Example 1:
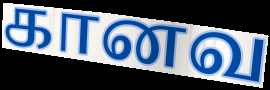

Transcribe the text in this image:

கானவ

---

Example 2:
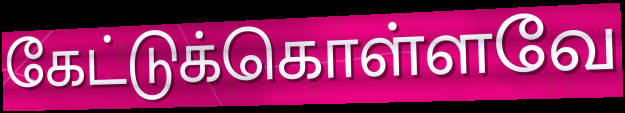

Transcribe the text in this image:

கேட்டுக்கொள்ளவே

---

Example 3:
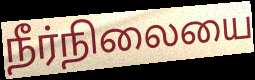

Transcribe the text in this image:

நீர்நிலையை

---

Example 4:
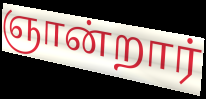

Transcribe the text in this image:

ஞான்றார்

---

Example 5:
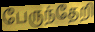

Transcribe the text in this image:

பேருந்தேறி